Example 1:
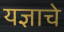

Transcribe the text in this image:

यज्ञाचे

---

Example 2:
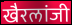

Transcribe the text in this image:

खैरलांजी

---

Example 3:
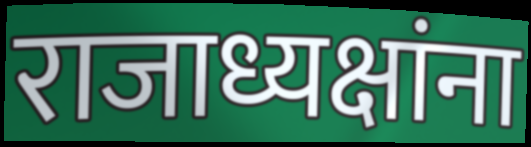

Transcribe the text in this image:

राजाध्यक्षांना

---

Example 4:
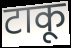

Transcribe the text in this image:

टाकू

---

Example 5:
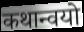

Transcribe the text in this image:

कथान्वयो